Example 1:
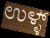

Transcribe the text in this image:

ಉಳ್ಳ್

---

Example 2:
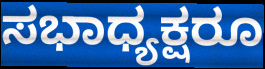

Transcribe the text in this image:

ಸಭಾಧ್ಯಕ್ಷರೂ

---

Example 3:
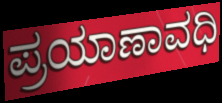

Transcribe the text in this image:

ಪ್ರಯಾಣಾವಧಿ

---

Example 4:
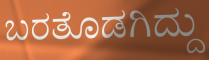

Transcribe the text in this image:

ಬರತೊಡಗಿದ್ದು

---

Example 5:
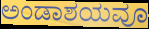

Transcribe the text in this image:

ಅಂಡಾಶಯವೂ